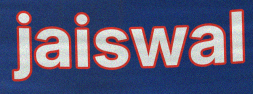
jaiswal